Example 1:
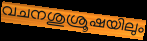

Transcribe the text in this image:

വചനശുശ്രൂഷയിലും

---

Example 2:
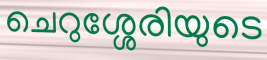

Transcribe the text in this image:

ചെറുശ്ശേരിയുടെ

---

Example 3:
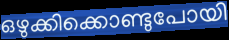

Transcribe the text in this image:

ഒഴുക്കിക്കൊണ്ടുപോയി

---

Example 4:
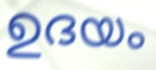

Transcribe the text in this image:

ഉദയം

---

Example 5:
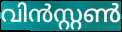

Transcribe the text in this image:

വിൻസ്റ്റൺ